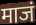
माजं